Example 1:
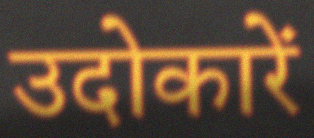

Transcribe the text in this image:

उदोकारें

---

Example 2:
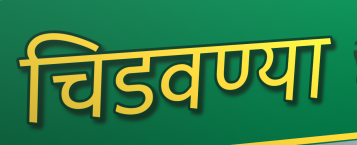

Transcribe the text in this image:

चिडवण्या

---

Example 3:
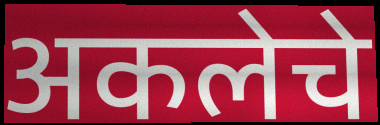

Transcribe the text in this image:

अकलेचे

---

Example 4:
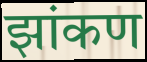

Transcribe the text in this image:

झांकण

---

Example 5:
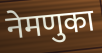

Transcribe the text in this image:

नेमणुका